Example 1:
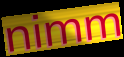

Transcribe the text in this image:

nimm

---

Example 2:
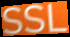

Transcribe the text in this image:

SSL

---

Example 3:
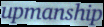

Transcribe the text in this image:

upmanship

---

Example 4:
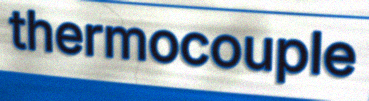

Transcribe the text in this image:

thermocouple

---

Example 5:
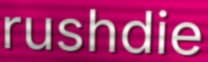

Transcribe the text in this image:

rushdie